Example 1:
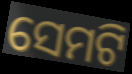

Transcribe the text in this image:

ସେମଟି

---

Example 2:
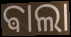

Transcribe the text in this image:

ଵାଲା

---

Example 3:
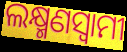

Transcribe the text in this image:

ଲକ୍ଷ୍ମଣସ୍ଵାମୀ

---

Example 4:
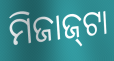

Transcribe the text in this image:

ମିଜାଜ୍‌ଟା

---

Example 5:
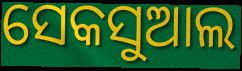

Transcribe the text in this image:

ସେକସୁଆଲ